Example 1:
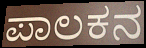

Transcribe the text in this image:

ಪಾಲಕನ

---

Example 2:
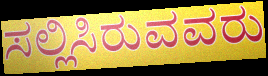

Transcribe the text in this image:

ಸಲ್ಲಿಸಿರುವವರು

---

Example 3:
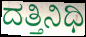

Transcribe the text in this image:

ದತ್ತಿನಿಧಿ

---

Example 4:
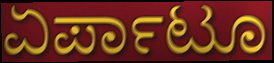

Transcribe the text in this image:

ಏರ್ಪಾಟೂ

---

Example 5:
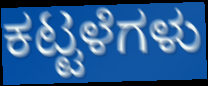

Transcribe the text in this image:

ಕಟ್ಟಳೆಗಳು